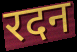
रदन